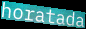
horatada